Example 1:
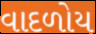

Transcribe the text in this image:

વાદળોય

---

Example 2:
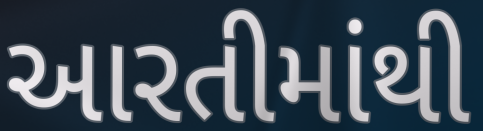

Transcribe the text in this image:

આરતીમાંથી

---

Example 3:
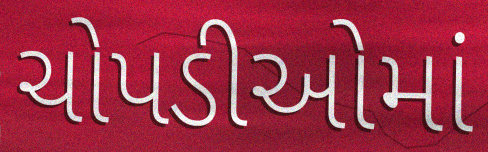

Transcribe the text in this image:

ચોપડીઓમાં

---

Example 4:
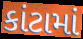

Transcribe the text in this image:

કાંટામાં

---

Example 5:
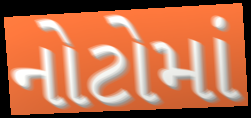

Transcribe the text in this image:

નોટોમાં